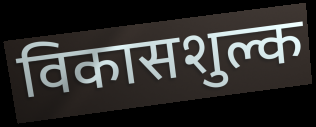
विकासशुल्क